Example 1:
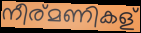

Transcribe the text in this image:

നീര്മണികള്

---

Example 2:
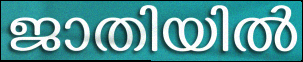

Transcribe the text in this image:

ജാതിയിൽ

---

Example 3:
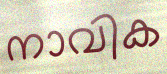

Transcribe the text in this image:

നാവിക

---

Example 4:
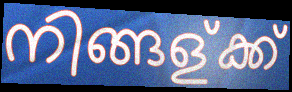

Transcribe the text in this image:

നിങ്ങള്ക്ക്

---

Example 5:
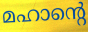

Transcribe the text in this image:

മഹാന്റെ